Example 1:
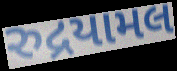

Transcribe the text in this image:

રુદ્રયામલ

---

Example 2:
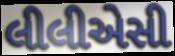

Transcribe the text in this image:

લીલીએસી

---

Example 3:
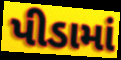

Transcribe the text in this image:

પીડામાં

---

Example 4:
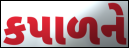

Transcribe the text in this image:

કપાળને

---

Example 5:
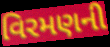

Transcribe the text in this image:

વિરમણની